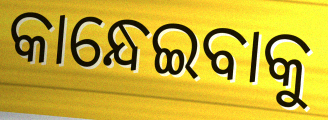
କାନ୍ଧେଇବାକୁ